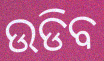
ଉଡିବ